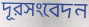
দূরসংবেদন